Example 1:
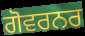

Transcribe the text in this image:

ਗੋਵਰਨਰ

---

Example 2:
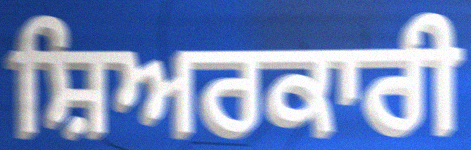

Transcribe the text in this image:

ਸ਼ਿਅਰਕਾਰੀ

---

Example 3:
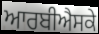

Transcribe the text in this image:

ਆਰਬੀਐਸਕੇ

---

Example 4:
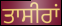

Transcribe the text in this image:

ਤਾਸੀਰਾਂ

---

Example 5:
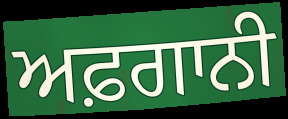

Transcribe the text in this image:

ਅਫ਼ਗਾਨੀ